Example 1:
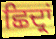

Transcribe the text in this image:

ਛਿਦ੍ਰਾਂ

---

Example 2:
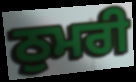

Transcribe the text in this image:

ਠੁਮਰੀ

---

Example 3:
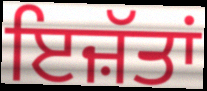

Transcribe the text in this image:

ਇਜ਼ੱਤਾਂ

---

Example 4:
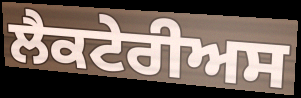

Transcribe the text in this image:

ਲੈਕਟੇਰੀਅਸ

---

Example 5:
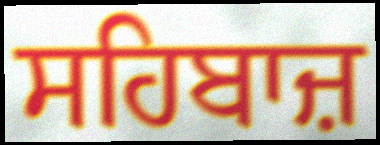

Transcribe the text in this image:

ਸਹਿਬਾਜ਼